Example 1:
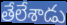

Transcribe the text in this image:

తేలేశాడు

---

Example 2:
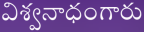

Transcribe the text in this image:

విశ్వనాధంగారు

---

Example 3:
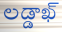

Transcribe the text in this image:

లడ్డాఖ్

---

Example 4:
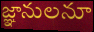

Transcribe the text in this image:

జ్ఞానులనూ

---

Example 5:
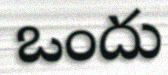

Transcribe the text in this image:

ఒందు